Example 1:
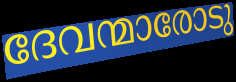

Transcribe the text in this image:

ദേവന്മാരോടു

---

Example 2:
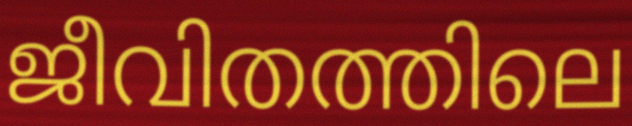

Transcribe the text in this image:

ജീവിതത്തിലെ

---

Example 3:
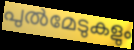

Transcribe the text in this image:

പുൽമേടുകളും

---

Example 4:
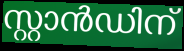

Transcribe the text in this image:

സ്റ്റാൻഡിന്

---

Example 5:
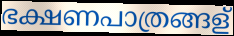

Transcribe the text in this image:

ഭക്ഷണപാത്രങ്ങള്